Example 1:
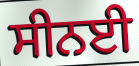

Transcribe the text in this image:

ਸੀਨਈ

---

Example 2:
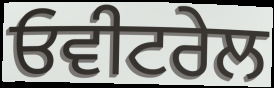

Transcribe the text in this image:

ਓਵੀਟਰੇਲ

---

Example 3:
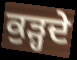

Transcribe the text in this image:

ਕੁੜ੍ਹਦੇ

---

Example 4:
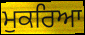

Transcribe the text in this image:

ਮੁਕਰਿਆ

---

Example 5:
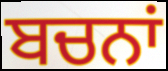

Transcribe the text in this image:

ਬਚਨਾਂ